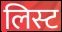
लिस्‍ट